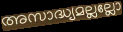
അസാദ്ധ്യമല്ലല്ലോ